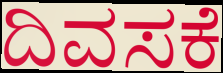
ದಿವಸಕೆ